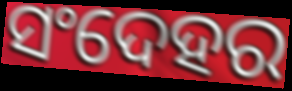
ସଂଦେହର